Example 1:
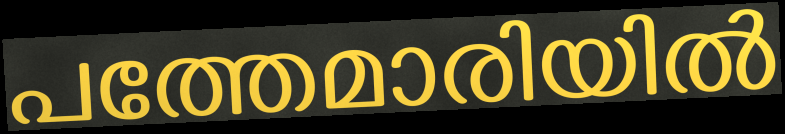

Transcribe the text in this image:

പത്തേമാരിയിൽ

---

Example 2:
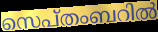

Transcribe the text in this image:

സെപ്തംബറിൽ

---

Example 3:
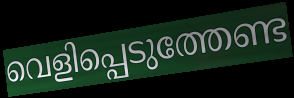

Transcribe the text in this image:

വെളിപ്പെടുത്തേണ്ട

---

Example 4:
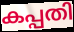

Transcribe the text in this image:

കപ്പതി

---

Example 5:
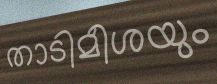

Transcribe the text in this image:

താടിമീശയും